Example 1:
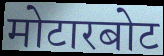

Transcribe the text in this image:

मोटारबोट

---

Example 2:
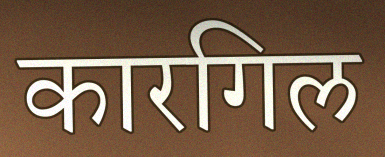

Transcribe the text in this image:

कारगिल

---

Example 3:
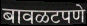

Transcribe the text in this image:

बावळटपणे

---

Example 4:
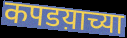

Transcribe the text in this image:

कपडय़ाच्या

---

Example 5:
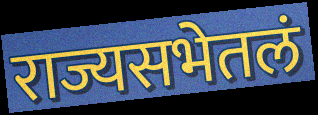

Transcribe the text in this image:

राज्यसभेतलं